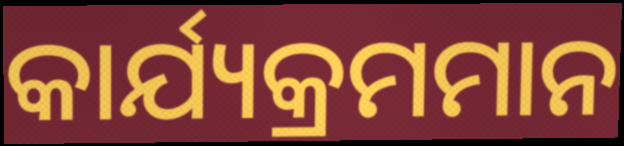
କାର୍ଯ୍ୟକ୍ରମମାନ